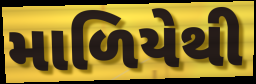
માળિયેથી